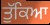
ਤੁੱਕਿਆ